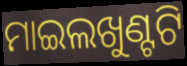
ମାଇଲଖୁଣ୍ଟଟି